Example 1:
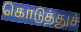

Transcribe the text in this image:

கொடுத்துச்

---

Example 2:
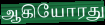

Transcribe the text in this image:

ஆகியோரது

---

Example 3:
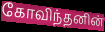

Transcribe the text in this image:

கோவிந்தனின்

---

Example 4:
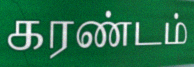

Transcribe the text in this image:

கரண்டம்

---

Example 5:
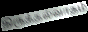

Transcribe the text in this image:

திருத்தல்வாதம்